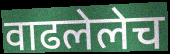
वाढलेलेच